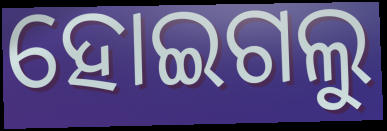
ହୋଇଗଲୁ